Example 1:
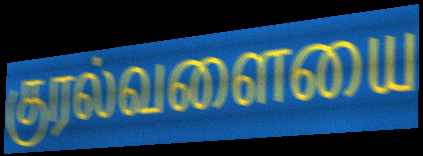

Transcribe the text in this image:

குரல்வளையை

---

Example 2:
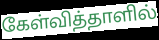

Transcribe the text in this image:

கேள்வித்தாளில்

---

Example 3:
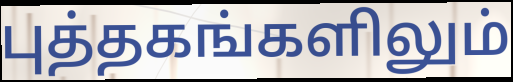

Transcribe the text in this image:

புத்தகங்களிலும்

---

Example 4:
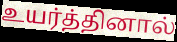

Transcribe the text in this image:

உயர்த்தினால்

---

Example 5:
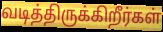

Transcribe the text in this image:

வடித்திருக்கிறீர்கள்